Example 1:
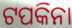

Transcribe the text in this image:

ଟପକିନା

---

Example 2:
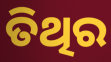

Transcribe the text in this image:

ତିଥିର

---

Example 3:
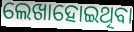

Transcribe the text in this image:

ଲେଖାହୋଇଥିବା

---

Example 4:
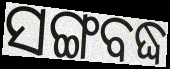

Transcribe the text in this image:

ସଙ୍ଗବଦ୍ଧ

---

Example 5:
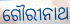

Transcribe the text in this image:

ଗୌରୀନାଥ